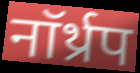
नॉर्थ्रप